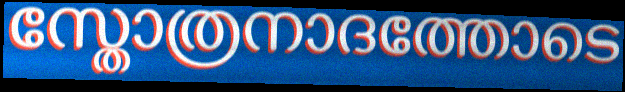
സ്തോത്രനാദത്തോടെ